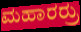
ಮಹಾರರ್ರು